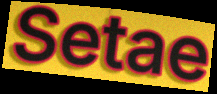
Setae